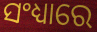
ସଂଧ୍ଯାରେ